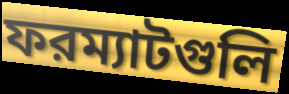
ফরম্যাটগুলি